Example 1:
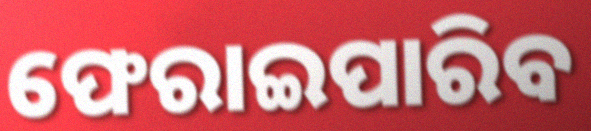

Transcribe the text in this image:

ଫେରାଇପାରିବ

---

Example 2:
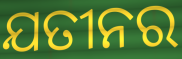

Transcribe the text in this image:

ଯତୀନର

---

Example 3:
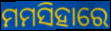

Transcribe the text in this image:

ମମସିହାରେ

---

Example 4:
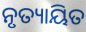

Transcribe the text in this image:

ନୃତ୍ୟାୟିତ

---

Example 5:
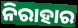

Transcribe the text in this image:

ନିରାହାର